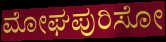
ಮೋಘಪುರಿಸೋ